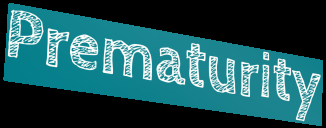
Prematurity